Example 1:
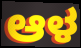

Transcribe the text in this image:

ಆಳ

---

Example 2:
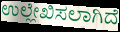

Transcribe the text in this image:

ಉಲ್ಲೇಖಿಸಲಾಗಿದೆ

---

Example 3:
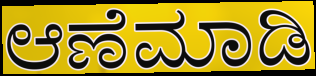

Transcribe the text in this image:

ಆಣೆಮಾಡಿ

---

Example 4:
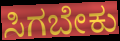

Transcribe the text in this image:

ಸಿಗಬೇಕು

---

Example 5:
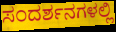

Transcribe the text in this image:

ಸಂದರ್ಶನಗಳಲ್ಲಿ